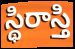
స్థిరాస్తి